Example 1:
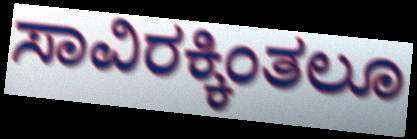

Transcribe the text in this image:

ಸಾವಿರಕ್ಕಿಂತಲೂ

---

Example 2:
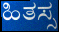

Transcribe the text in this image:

ಹಿತಸ್ಸ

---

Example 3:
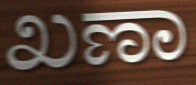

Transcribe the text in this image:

ಖಣಾ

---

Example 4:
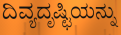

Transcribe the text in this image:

ದಿವ್ಯದೃಷ್ಟಿಯನ್ನು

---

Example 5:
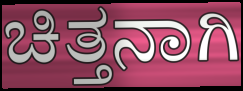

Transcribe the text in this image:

ಚಿತ್ತನಾಗಿ